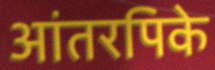
आंतरपिके